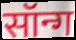
सॉन्ग